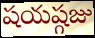
షయష్గజు